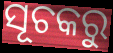
ସୂଚକରୁ